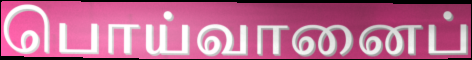
பொய்வானைப்